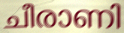
ചീരാണി